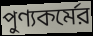
পুণ্যকর্মের